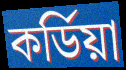
কর্ডিয়া